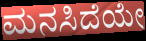
ಮನಸಿದೆಯೇ